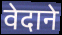
वेदाने